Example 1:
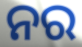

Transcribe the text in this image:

ନର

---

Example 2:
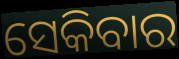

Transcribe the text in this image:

ସେକିବାର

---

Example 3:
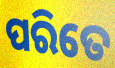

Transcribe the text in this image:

ପରିତେ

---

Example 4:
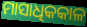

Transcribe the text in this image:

ମାସାଧିକକାଳ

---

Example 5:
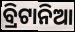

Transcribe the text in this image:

ବ୍ରିଟାନିଆ